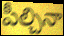
పీల్చినా